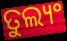
ତୁଲ୍ୟଂ